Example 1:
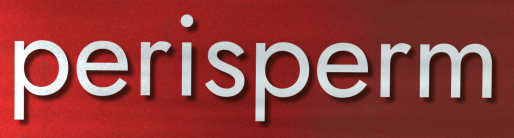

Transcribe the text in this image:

perisperm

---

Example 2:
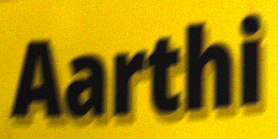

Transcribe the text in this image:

Aarthi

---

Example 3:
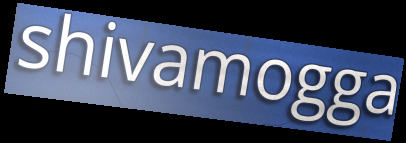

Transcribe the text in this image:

shivamogga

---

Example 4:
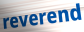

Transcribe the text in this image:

reverend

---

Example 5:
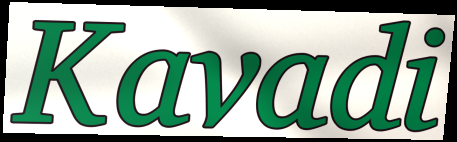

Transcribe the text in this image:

Kavadi